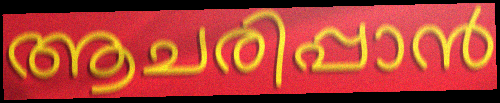
ആചരിപ്പാൻ